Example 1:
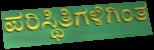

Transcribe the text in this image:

ಪರಿಸ್ಥಿತಿಗಳಿಗಿಂತ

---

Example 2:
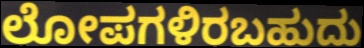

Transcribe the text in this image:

ಲೋಪಗಳಿರಬಹುದು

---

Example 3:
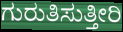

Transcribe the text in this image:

ಗುರುತಿಸುತ್ತೀರಿ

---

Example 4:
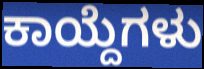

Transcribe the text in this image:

ಕಾಯ್ದೆಗಳು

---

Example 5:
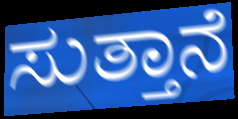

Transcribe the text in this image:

ಸುತ್ತಾನೆ